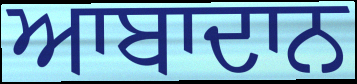
ਆਬਾਦਾਨ